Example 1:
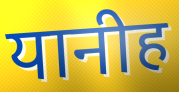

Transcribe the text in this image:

यानीह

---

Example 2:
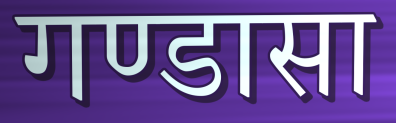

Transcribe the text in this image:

गण्डासा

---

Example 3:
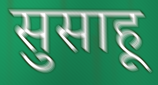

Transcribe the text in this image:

सुसाहू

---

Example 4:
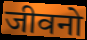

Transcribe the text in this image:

जीवनो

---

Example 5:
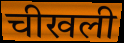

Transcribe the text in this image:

चीखली